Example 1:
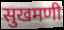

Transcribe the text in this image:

सुखमणी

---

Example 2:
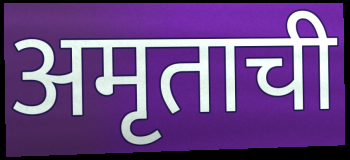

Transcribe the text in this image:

अमृताची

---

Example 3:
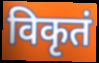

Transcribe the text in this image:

विकृतं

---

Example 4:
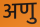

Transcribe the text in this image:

अणु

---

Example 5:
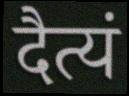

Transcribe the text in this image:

दैत्यं